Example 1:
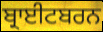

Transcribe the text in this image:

ਬ੍ਰਾਈਟਬਰਨ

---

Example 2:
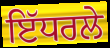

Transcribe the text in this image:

ਇੱਧਰਲੇ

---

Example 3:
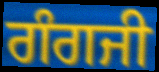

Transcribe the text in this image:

ਗੰਗਜੀ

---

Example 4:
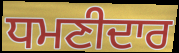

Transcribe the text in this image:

ਧਮਣੀਦਾਰ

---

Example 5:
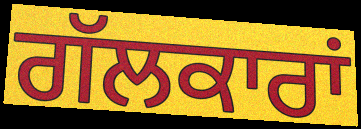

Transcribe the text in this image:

ਗੱਲਕਾਰਾਂ